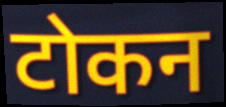
टोकन